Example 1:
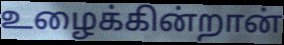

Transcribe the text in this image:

உழைக்கின்றான்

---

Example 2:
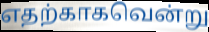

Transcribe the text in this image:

எதற்காகவென்று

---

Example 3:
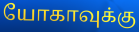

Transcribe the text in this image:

யோகாவுக்கு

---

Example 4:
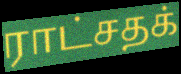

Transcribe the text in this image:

ராட்சதக்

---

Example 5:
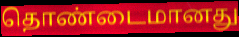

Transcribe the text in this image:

தொண்டைமானது